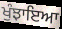
ਖੁੰਝਾਇਆ